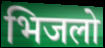
भिजलो